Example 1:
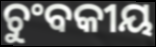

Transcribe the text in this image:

ଚୁଂବକୀୟ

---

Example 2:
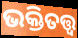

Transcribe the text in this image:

ଭକ୍ତିତତ୍ତ୍ୱ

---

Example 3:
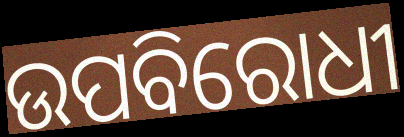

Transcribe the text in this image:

ଉପବିରୋଧୀ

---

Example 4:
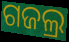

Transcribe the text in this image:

ଗଜଲ୍ର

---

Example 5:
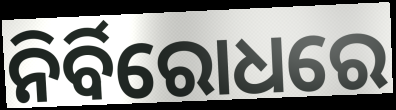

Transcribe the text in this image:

ନିର୍ବିରୋଧରେ